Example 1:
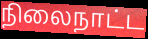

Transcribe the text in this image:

நிலைநாட்ட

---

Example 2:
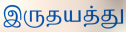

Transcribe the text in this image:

இருதயத்து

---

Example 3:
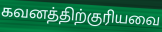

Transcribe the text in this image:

கவனத்திற்குரியவை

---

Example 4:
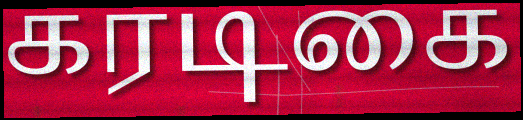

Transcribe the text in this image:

கரடிகை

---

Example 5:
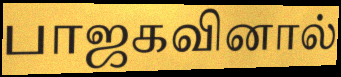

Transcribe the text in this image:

பாஜகவினால்